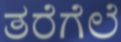
ತರೆಗೆಲೆ